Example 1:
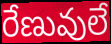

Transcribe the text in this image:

రేణువులే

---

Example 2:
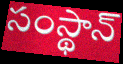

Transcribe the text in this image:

సంస్థాన్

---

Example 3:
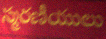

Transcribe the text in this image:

స్మరణీయులు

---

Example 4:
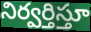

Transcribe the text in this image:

నిర్వర్తిస్తూ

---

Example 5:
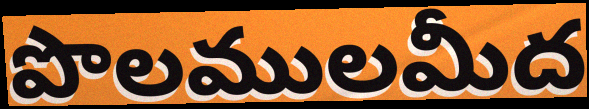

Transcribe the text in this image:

పొలములమీద